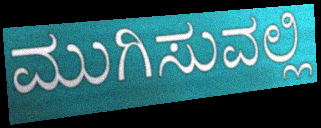
ಮುಗಿಸುವಲ್ಲಿ